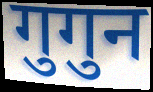
गुगुन